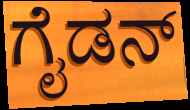
ಗೈಡನ್